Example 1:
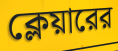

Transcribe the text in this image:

ক্লেয়ারের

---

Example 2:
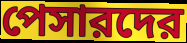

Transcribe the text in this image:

পেসারদের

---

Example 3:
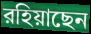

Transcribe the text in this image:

রহিয়াছেন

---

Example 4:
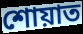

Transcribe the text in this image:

শোয়াত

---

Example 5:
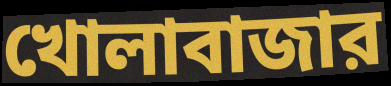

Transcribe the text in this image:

খোলাবাজার